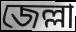
জেল্লা